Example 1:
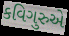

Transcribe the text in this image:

કવિગુરુએ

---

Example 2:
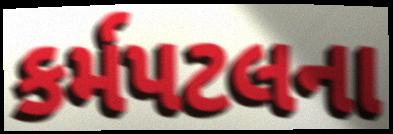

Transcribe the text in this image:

કર્મપટલના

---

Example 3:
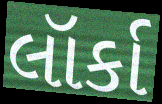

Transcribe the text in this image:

લૉર્કા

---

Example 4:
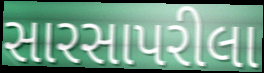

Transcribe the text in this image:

સારસાપરીલા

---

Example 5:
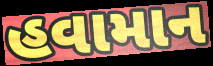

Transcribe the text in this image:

હવામાન